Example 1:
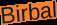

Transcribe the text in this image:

Birbal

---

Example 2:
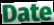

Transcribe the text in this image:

Date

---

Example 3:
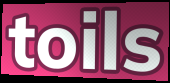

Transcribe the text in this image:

toils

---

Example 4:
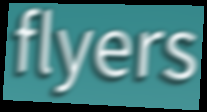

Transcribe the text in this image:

flyers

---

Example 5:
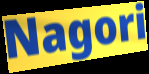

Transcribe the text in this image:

Nagori